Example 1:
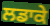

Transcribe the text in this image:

ਲਡਾਕੇ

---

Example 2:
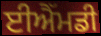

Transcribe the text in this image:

ਈਐੱਮਡੀ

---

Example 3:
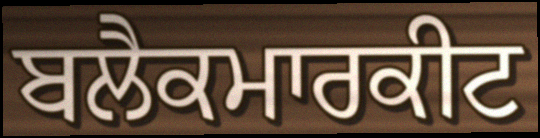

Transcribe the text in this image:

ਬਲੈਕਮਾਰਕੀਟ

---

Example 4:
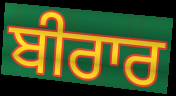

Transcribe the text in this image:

ਬੀਰਾਰ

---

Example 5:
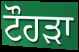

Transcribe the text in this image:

ਟੌਹਡ਼ਾ